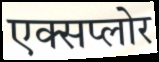
एक्सप्लोर